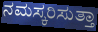
ನಮಸ್ಕರಿಸುತ್ತಾ